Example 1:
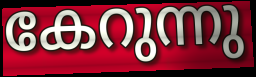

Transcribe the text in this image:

കേറുന്നു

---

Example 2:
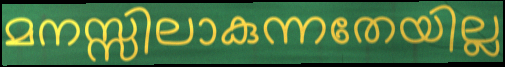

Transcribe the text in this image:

മനസ്സിലാകുന്നതേയില്ല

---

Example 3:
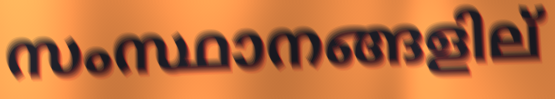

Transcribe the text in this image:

സംസ്ഥാനങ്ങളില്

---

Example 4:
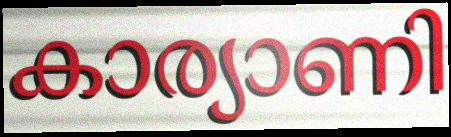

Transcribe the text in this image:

കാര്യാണി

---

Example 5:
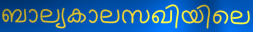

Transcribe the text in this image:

ബാല്യകാലസഖിയിലെ